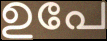
ഉപേ